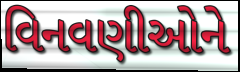
વિનવણીઓને